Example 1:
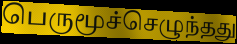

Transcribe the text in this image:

பெருமூச்செழுந்தது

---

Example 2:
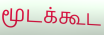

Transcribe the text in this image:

மூடக்கூட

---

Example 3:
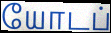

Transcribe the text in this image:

யோடப்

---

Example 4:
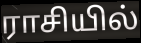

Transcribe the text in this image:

ராசியில்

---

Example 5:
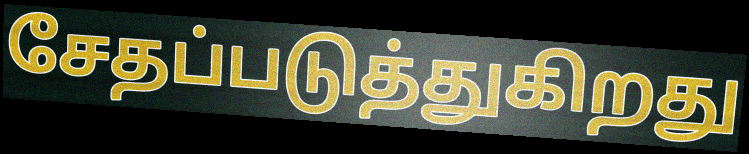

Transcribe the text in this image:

சேதப்படுத்துகிறது